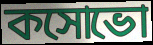
কসোভো